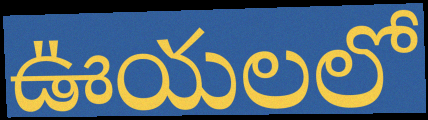
ఊయలలో